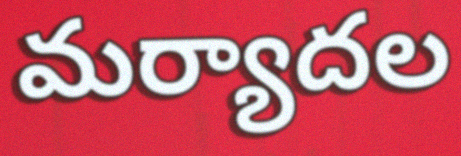
మర్యాదల